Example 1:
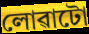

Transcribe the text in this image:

লোৱাটো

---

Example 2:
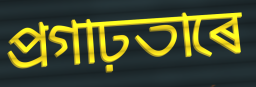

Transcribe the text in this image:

প্ৰগাঢ়তাৰে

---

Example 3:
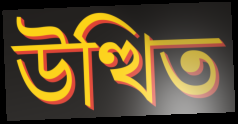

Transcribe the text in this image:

উত্থিত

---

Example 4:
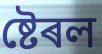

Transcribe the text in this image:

ষ্টেৰল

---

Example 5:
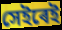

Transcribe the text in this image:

সেইৰেই